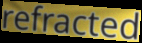
refracted